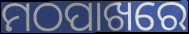
ମଠପାଖରେ